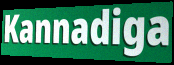
Kannadiga